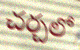
చర్చలో